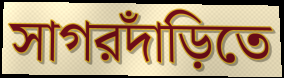
সাগরদাঁড়িতে